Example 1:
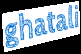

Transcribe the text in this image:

ghatali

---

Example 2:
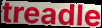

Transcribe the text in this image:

treadle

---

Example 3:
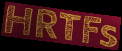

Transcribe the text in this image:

HRTFs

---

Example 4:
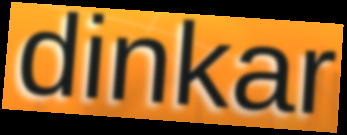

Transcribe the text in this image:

dinkar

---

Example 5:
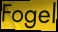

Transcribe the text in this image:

Fogel